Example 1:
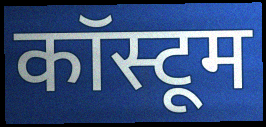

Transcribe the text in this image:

कॉस्टूम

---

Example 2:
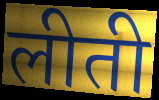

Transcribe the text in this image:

लीती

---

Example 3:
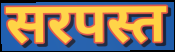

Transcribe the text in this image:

सरपस्त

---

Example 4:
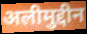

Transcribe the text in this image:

अलीमुद्दीन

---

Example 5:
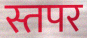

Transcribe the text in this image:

स्तपर